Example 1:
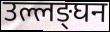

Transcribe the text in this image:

उल्लङ्घन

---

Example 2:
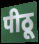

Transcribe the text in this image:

पीठू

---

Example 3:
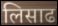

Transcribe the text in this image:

लिसाढ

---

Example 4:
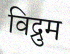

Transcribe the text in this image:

विद्रुम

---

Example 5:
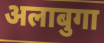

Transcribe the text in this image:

अलाबुगा